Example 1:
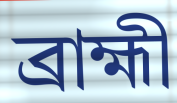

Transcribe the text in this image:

ব্ৰাহ্মী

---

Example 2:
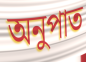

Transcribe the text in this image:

অনুপাত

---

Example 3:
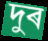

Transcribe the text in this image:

দুৰ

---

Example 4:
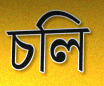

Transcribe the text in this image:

চলি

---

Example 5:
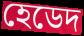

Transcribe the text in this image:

হেডেদ